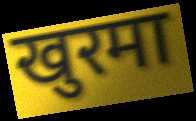
खुरमा